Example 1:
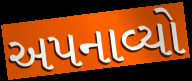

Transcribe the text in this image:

અપનાવ્યો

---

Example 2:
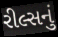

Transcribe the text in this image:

રીલ્સનું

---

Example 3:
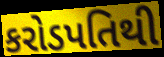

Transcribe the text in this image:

કરોડપતિથી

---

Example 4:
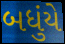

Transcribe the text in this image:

બધુંયે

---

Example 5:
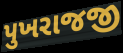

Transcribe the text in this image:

પુખરાજજી